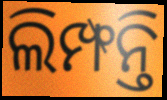
ଲିମ୍ଫନ୍ତି